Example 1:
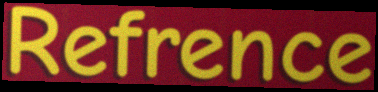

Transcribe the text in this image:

Refrence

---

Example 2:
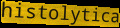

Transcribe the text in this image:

histolytica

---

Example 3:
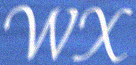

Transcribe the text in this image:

WX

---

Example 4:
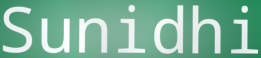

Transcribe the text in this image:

Sunidhi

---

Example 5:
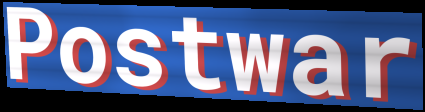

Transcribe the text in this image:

Postwar